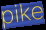
pike